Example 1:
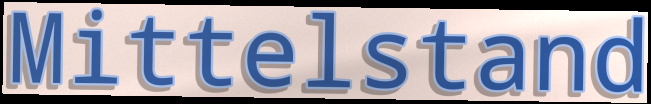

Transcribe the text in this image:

Mittelstand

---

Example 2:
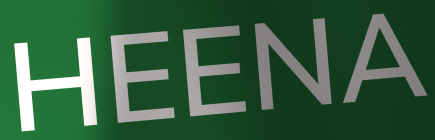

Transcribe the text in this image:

HEENA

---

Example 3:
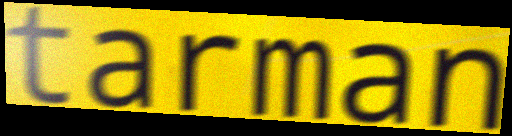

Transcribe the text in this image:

tarman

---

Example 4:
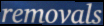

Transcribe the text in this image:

removals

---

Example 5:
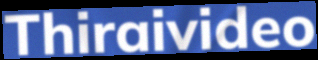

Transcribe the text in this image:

Thiraivideo